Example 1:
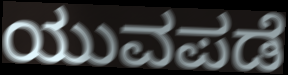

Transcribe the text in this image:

ಯುವಪಡೆ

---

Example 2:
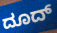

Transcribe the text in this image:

ದೂದ್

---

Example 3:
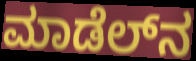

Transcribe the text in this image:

ಮಾಡೆಲ್‌ನ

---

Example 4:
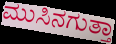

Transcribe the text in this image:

ಮುಸಿನಗುತ್ತಾ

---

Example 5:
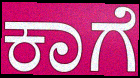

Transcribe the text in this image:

ಕಾಗೆ